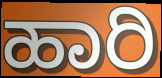
ಹಾರಿ